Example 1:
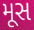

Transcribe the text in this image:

મૂસ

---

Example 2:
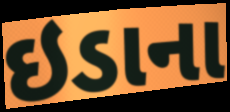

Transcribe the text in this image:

ઇડાના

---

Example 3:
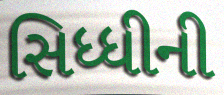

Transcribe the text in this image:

સિધ્ધીની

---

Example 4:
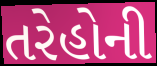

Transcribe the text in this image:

તરેહોની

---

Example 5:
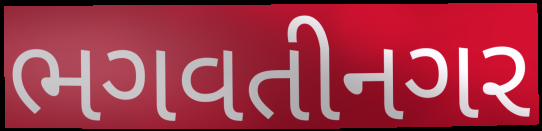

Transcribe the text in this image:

ભગવતીનગર